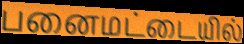
பனைமட்டையில்